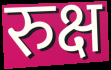
रुक्ष